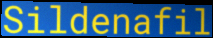
Sildenafil